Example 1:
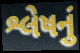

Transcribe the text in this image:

શ્લેષનું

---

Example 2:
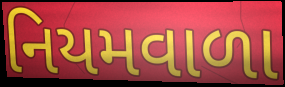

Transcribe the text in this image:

નિયમવાળા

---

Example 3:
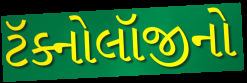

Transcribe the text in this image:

ટૅક્નોલૉજીનો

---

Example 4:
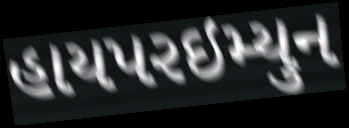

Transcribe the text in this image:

હાયપરઇમ્યુન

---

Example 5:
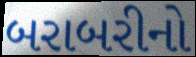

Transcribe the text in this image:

બરાબરીનો